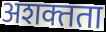
अशक्‍तता